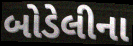
બોડેલીના